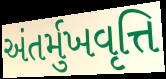
અંતર્મુખવૃત્તિ